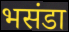
भसंडा